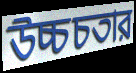
উচ্চচতার